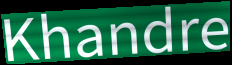
Khandre